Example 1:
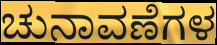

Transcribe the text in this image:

ಚುನಾವಣೆಗಳ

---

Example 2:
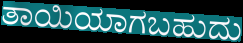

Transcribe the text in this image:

ತಾಯಿಯಾಗಬಹುದು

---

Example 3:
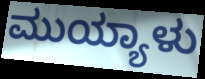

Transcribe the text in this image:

ಮುಯ್ಯಾಳು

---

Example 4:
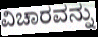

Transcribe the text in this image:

ವಿಚಾರವನ್ನು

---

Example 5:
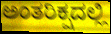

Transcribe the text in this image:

ಅಂತರಿಕ್ಷದಲ್ಲಿ